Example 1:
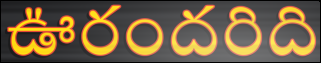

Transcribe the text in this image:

ఊరందరిది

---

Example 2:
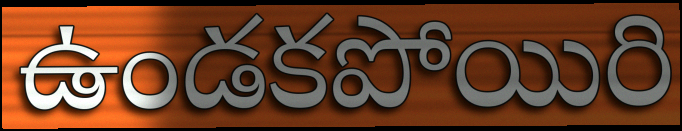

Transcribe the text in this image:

ఉండకపోయిరి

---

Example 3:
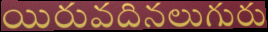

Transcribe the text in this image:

యిరువదినలుగురు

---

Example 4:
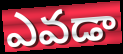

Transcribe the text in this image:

ఎవడా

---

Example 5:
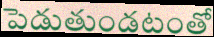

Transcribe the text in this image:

పెడుతుండటంతో